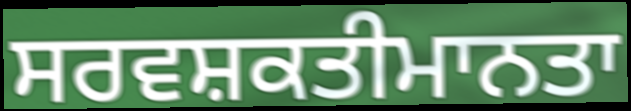
ਸਰਵਸ਼ਕਤੀਮਾਨਤਾ